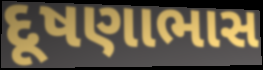
દૂષણાભાસ